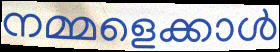
നമ്മളെക്കാൾ